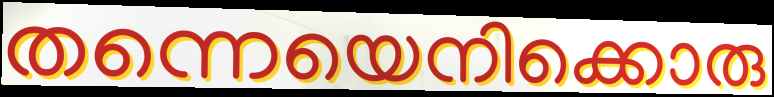
തന്നെയെനിക്കൊരു